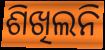
ଶିଖିଲନି